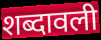
शब्दावली